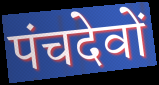
पंचदेवों